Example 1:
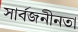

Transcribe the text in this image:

সাৰ্বজনীনতা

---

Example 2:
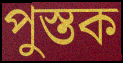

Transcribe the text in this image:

পুস্তক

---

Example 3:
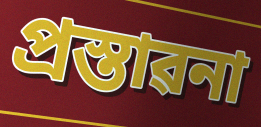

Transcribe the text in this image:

প্ৰস্তাৱনা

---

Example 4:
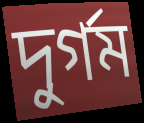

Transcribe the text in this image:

দুৰ্গম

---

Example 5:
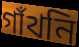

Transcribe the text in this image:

গাঁথনি